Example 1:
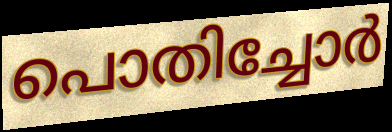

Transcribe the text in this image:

പൊതിച്ചോർ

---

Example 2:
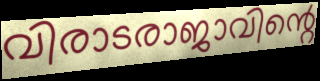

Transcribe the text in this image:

വിരാടരാജാവിന്റെ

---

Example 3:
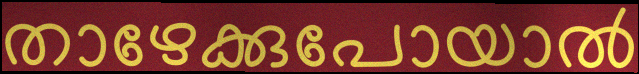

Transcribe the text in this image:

താഴേക്കുപോയാൽ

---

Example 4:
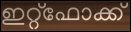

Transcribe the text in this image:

ഇറ്റ്ഫോക്ക്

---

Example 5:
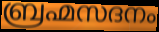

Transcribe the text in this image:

ബ്രഹ്മസദനം